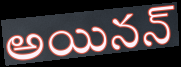
అయినన్